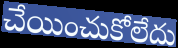
చేయించుకోలేదు